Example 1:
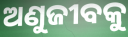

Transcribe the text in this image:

ଅଣୁଜୀବକୁ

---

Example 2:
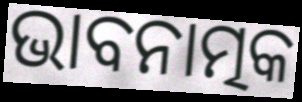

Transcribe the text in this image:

ଭାବନାତ୍ମକ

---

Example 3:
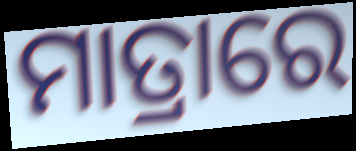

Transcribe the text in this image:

ମାତ୍ରାରେ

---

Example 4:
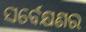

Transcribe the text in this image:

ସର୍ବେକ୍ଷଣର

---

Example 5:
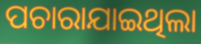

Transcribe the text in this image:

ପଚାରାଯାଇଥିଲା